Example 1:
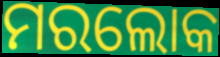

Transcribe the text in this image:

ମରଲୋକ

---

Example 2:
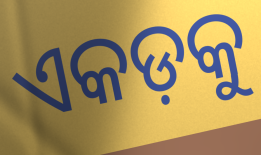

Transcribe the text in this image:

ଏକଡ଼କୁ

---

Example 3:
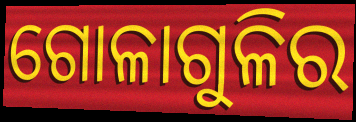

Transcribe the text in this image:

ଗୋଳାଗୁଳିର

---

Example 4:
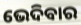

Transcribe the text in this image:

ଭେଦିବାର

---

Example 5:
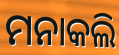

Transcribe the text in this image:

ମନାକଲି